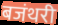
बजंथरी